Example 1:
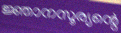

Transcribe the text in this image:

ജ്ഞാനസൂര്യന്റെ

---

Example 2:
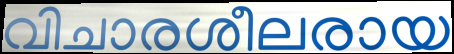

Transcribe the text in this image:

വിചാരശീലരായ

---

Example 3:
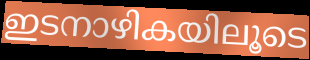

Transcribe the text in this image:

ഇടനാഴികയിലൂടെ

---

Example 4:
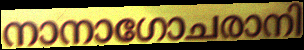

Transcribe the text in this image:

നാനാഗോചരാനി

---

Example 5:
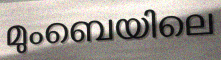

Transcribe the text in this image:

മുംബെയിലെ